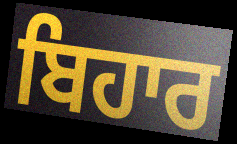
ਬਿਹਾਰ